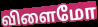
விளைமோ